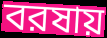
বরষায়